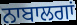
ਨਾਬਾਲਗਾਂ